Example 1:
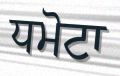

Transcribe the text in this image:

ਧਮੋਟਾ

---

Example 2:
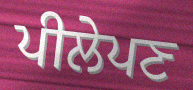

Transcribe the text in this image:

ਪੀਲੇਪਣ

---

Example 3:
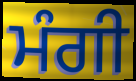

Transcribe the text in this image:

ਮੰਗੀ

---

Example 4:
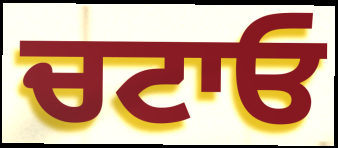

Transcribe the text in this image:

ਚਟਾਓ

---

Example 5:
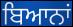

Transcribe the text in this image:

ਬਿਆਨਾਂ